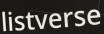
listverse